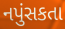
નપુંસકતા